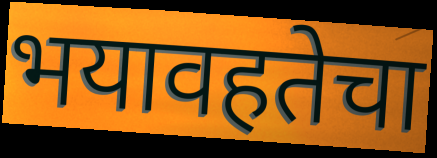
भयावहतेचा